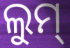
ଲୁମ୍